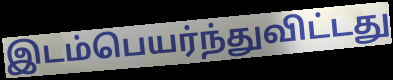
இடம்பெயர்ந்துவிட்டது